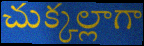
చుక్కల్లాగా